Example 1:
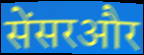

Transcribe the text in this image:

सेंसरऔर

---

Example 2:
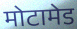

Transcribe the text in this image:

मोटामेड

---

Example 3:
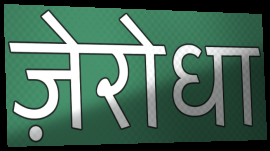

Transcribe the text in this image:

ज़ेरोधा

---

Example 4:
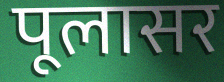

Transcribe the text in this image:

पूलासर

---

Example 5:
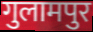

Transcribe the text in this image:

गुलामपुर